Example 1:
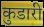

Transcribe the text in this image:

कुडारी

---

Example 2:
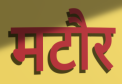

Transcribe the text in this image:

मटौर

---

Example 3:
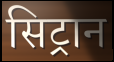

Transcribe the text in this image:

सिट्रान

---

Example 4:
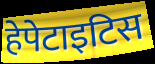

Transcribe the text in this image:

हेपेटाइटिस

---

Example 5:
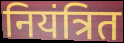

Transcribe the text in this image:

नियंत्रित